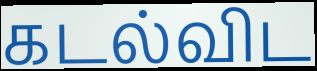
கடல்விட